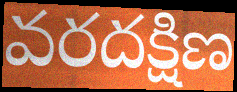
వరదక్షిణ